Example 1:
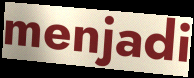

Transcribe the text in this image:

menjadi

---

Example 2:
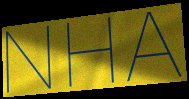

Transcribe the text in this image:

NHA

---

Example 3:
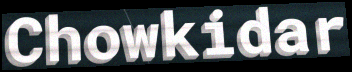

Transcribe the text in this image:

Chowkidar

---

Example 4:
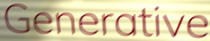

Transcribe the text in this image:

Generative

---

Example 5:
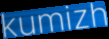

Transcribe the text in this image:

kumizh